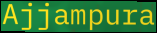
Ajjampura